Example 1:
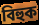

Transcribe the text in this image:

বিহুক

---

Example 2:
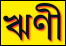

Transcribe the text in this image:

ঋণী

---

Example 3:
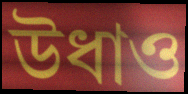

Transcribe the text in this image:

উধাও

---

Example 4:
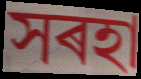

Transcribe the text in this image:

সৰহা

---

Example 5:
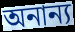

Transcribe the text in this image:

অনান্য